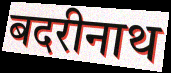
बदरीनाथ